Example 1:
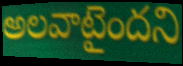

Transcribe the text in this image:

అలవాటైందని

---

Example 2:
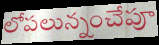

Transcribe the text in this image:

లోపలున్నంచేపూ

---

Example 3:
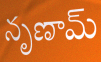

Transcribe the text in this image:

నృణామ్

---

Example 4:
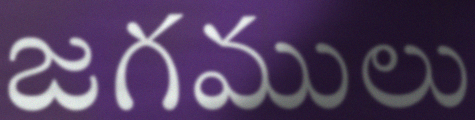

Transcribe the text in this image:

జగములు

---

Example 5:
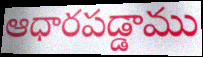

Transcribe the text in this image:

ఆధారపడ్డాము